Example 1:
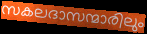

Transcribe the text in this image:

സകലദാസന്മാരിലും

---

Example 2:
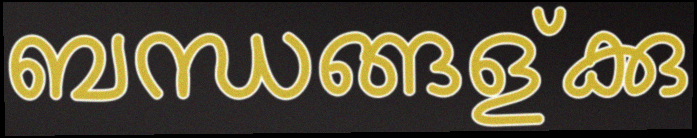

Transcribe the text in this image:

ബന്ധങ്ങള്ക്കു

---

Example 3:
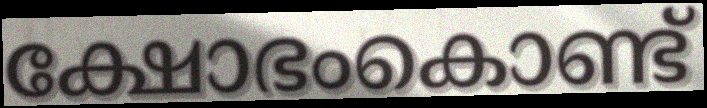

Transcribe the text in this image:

ക്ഷോഭംകൊണ്ട്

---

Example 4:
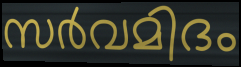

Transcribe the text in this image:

സർവമിദം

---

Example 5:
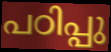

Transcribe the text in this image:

പഠിപ്പു